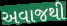
અવાજથી